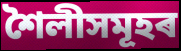
শৈলীসমূহৰ